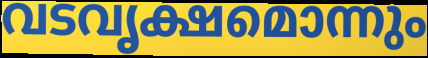
വടവൃക്ഷമൊന്നും